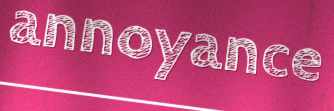
annoyance